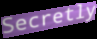
Secretly